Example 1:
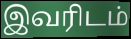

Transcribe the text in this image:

இவரிடம்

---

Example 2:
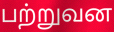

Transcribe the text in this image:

பற்றுவன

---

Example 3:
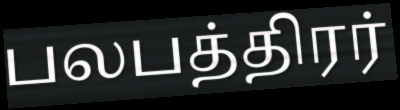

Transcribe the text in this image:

பலபத்திரர்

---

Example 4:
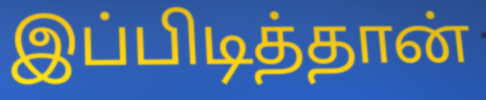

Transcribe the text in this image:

இப்பிடித்தான்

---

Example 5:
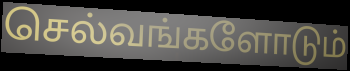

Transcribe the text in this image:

செல்வங்களோடும்